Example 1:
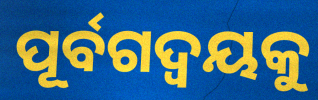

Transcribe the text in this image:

ପୂର୍ବଗଦ୍ଵୟକୁ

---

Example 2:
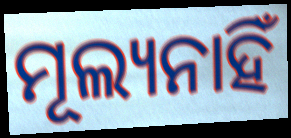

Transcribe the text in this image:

ମୂଲ୍ୟନାହିଁ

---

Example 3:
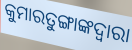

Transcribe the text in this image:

କୁମାରତୁଙ୍ଗାଙ୍କଦ୍ୱାରା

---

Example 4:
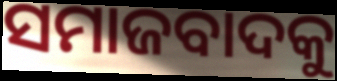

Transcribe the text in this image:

ସମାଜବାଦକୁ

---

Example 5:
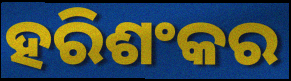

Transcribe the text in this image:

ହରିଶଂକର